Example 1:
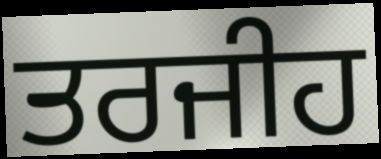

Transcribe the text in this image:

ਤਰਜੀਹ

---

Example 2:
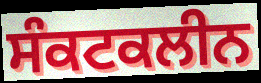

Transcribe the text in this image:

ਸੰਕਟਕਲੀਨ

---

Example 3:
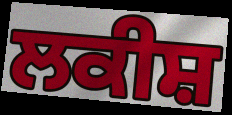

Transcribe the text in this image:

ਲਕੀਸ਼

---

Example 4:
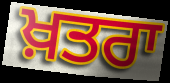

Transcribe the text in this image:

ਖ਼ਤਰਾ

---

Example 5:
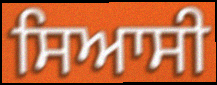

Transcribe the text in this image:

ਸਿਆਸੀ